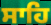
ਸਾਹਿ